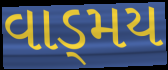
વાડ્મય